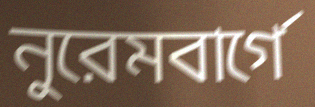
নুরেমবার্গে